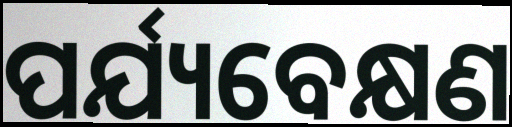
ପର୍ଯ୍ୟବେକ୍ଷଣ